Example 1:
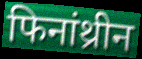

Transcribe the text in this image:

फिनांथ्रीन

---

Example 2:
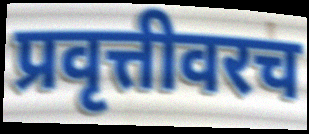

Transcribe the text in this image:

प्रवृत्तीवरच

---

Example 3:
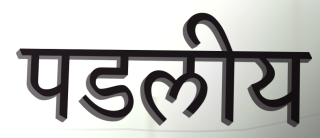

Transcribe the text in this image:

पडलीय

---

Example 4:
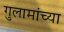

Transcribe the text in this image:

गुलामांच्या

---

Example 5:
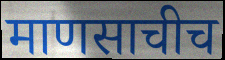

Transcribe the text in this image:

माणसाचीच